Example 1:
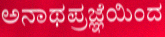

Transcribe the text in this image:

ಅನಾಥಪ್ರಜ್ಞೆಯಿಂದ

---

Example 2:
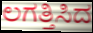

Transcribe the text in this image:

ಲಗತ್ತಿಸಿದ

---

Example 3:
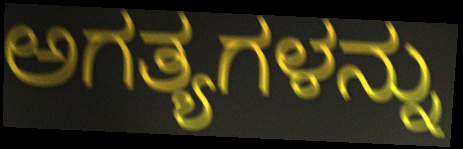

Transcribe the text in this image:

ಅಗತ್ಯಗಳನ್ನು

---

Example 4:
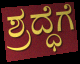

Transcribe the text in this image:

ಶ್ರದ್ಧೆಗೆ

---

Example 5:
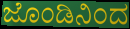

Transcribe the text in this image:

ಜೊಂಡಿನಿಂದ